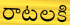
రాటలకి